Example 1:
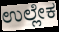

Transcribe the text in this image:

ಉಲ್ಲೇಕ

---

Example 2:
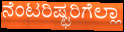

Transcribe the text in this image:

ನೆಂಟರಿಷ್ಟರಿಗೆಲ್ಲಾ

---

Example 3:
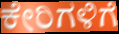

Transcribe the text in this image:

ಕೇರಿಗಳಿಗೆ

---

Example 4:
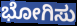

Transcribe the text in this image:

ಭೋಗಿಸು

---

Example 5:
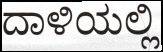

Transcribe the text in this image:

ದಾಳಿಯಲ್ಲಿ